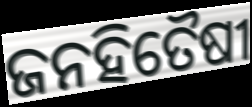
ଜନହିତୈଷୀ